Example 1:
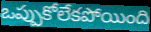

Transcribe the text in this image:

ఒప్పుకోలేకపోయింది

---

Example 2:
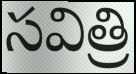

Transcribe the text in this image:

సవిత్రి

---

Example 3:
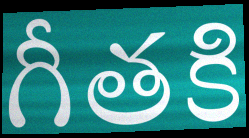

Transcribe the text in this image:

గీతకి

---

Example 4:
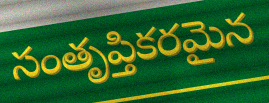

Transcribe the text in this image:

సంతృప్తికరమైన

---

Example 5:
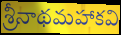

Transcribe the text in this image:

శ్రీనాథమహాకవి